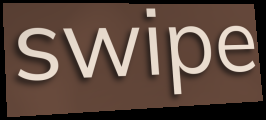
swipe